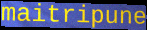
maitripune